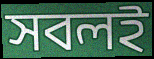
সবলই